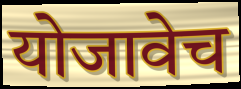
योजावेच